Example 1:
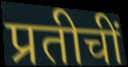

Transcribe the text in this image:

प्रतीचीं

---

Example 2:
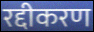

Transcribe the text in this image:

रद्दीकरण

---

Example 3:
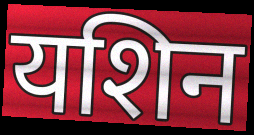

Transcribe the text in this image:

यशिन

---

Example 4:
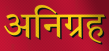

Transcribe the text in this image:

अनिग्रह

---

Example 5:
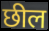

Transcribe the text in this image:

छील